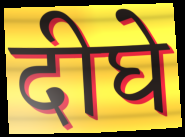
दीघे